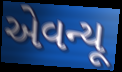
એવન્યૂ